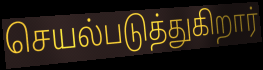
செயல்படுத்துகிறார்